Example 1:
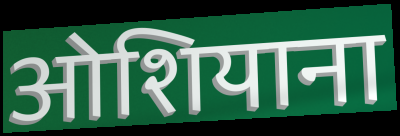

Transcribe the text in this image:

ओशियाना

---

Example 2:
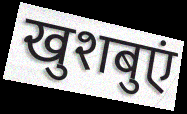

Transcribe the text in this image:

खुशबुएं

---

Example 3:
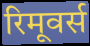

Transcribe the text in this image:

रिमूवर्स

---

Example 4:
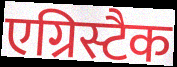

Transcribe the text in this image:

एग्रिस्टैक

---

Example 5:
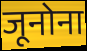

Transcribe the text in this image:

जूनोना